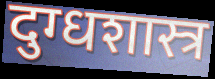
दुग्धशास्त्र